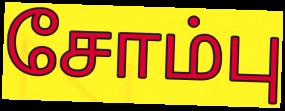
சோம்பு